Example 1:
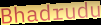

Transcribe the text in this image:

Bhadrudu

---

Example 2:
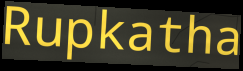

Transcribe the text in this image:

Rupkatha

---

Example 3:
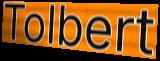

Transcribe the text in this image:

Tolbert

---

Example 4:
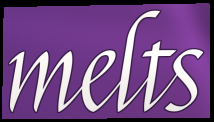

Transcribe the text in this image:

melts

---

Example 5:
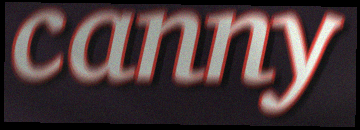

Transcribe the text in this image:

canny